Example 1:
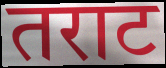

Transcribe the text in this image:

तराट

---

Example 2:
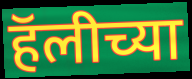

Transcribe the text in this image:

हॅलीच्या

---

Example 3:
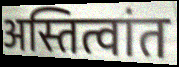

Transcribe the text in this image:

अस्तित्वांत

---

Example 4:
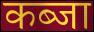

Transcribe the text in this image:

कब्जा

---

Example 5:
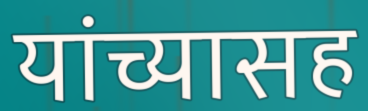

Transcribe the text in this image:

यांच्यासह